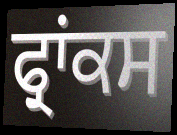
ਫ੍ਰਾਂਕਸ